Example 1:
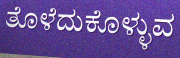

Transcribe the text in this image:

ತೊಳೆದುಕೊಳ್ಳುವ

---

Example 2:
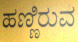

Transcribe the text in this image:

ಹಣ್ಣಿರುವ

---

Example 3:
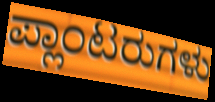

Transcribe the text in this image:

ಪ್ಲಾಂಟರುಗಳು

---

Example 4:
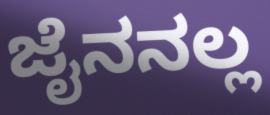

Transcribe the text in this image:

ಜೈನನಲ್ಲ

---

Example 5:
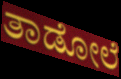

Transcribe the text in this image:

ತಾಡೋಲೆ